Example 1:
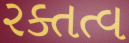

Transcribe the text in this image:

રક્તત્વ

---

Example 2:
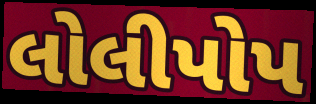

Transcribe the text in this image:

લોલીપોપ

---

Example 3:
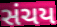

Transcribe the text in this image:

સંચય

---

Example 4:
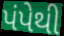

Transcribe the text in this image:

પંપેથી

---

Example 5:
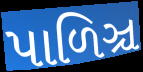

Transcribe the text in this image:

પાળિઞ્ચ